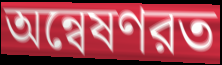
অন্বেষণরত